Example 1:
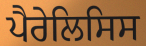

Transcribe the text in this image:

ਪੈਰੇਲਿਸਿਸ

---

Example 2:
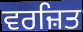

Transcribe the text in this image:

ਵਰਜ਼ਿਤ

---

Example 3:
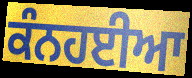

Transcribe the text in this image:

ਕੰਨਹਈਆ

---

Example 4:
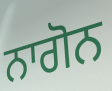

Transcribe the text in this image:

ਨਾਗੋਨ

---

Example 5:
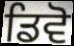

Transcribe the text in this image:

ਡਿਵੋ